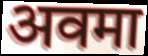
अवमा